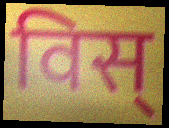
विस्